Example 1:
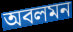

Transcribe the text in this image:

অবলমন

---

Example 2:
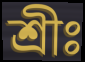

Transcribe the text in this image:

শ্রীঃ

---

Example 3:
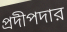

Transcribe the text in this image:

প্রদীপদার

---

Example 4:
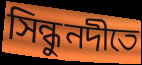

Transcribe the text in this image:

সিন্ধুনদীতে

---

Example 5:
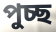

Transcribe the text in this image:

পুচ্ছ